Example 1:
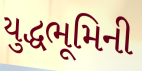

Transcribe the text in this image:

યુદ્ધભૂમિની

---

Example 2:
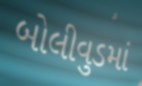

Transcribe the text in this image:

બોલીવુડમાં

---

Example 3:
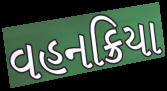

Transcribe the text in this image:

વહનક્રિયા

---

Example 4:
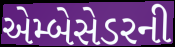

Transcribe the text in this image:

એમ્બેસેડરની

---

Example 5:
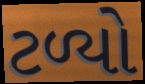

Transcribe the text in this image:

ટળ્યો